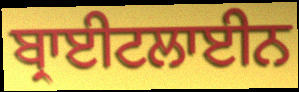
ਬ੍ਰਾਈਟਲਾਈਨ